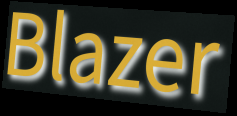
Blazer